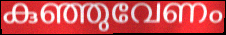
കുഞ്ഞുവേണം